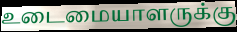
உடைமையாளருக்கு